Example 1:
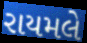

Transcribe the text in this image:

રાયમલે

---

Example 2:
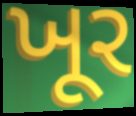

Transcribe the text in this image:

ખૂર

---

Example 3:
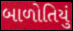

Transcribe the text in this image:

બાળોતિયું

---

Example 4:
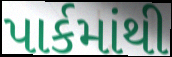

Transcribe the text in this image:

પાર્કમાંથી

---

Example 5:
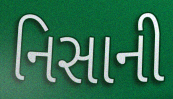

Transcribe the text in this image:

નિસાની